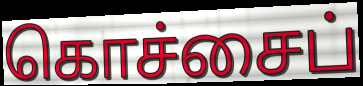
கொச்சைப்